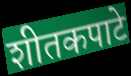
शीतकपाटे